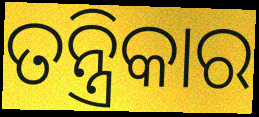
ତନ୍ତ୍ରିକାର